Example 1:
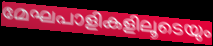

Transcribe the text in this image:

മേഘപാളികളിലൂടെയും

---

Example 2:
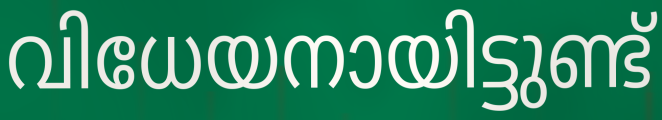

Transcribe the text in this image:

വിധേയനായിട്ടുണ്ട്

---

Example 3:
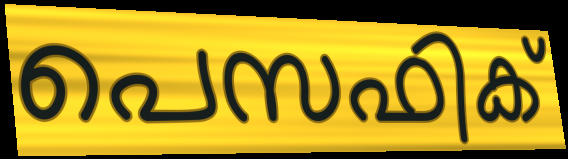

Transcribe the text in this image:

പെസഫിക്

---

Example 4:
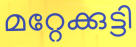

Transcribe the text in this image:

മറ്റേക്കുട്ടി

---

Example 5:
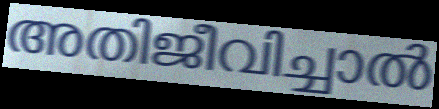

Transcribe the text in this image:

അതിജീവിച്ചാൽ